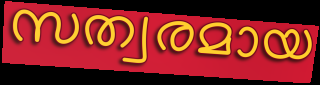
സത്വരമായ